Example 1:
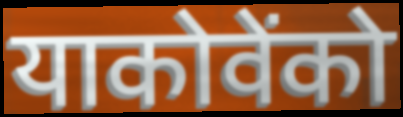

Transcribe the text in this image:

याकोवेंको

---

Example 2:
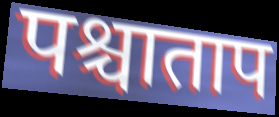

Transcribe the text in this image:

पश्चाताप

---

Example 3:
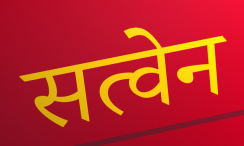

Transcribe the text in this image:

सत्वेन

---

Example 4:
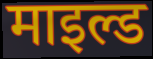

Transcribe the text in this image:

माइल्ड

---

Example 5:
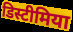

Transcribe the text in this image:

डिस्टीमिया